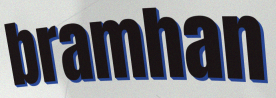
bramhan